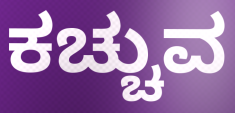
ಕಚ್ಚುವ